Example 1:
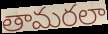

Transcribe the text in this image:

తామరలా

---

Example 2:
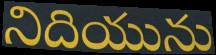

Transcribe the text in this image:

నిదియును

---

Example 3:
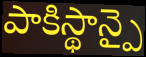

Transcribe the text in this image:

పాకిస్థాన్పై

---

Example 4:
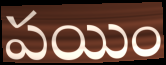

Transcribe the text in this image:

పయిం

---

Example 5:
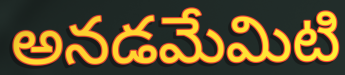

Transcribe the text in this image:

అనడమేమిటి